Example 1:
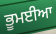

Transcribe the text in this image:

ਭੂਮਈਆ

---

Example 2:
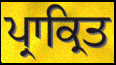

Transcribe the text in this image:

ਪ੍ਰਾਕ੍ਰਿਤ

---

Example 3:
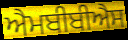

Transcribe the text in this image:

ਐਮਬੀਬੀਐਸ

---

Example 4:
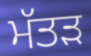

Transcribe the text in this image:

ਮੱਤੜ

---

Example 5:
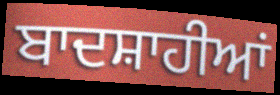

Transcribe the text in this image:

ਬਾਦਸ਼ਾਹੀਆਂ